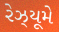
રેઝ્યૂમે